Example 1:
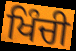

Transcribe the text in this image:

ਖਿੰਚੀ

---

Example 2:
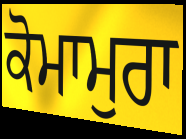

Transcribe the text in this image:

ਕੋਮਾਮੁਰਾ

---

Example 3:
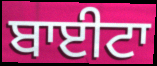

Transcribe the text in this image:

ਬਾਈਟਾ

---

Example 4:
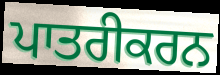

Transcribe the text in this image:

ਪਾਤਰੀਕਰਨ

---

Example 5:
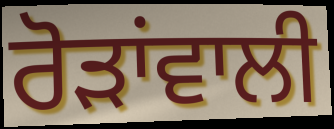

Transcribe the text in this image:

ਰੋੜਾਂਵਾਲੀ